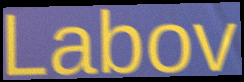
Labov